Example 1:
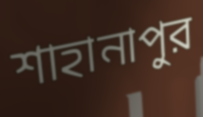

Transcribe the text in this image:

শাহানাপুর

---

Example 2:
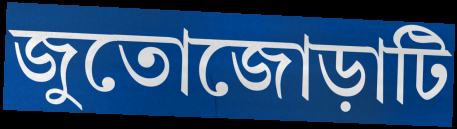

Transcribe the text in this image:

জুতোজোড়াটি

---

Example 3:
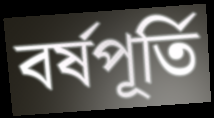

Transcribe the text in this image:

বর্ষপূর্তি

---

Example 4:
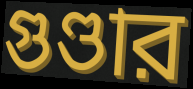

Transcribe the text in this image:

গুণ্ডার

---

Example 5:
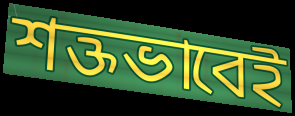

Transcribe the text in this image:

শক্তভাবেই